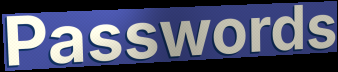
Passwords